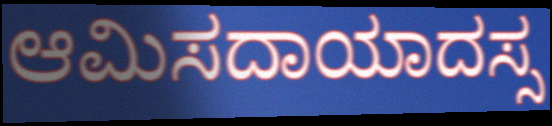
ಆಮಿಸದಾಯಾದಸ್ಸ